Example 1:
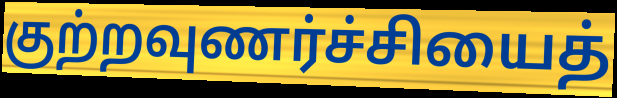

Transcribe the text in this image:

குற்றவுணர்ச்சியைத்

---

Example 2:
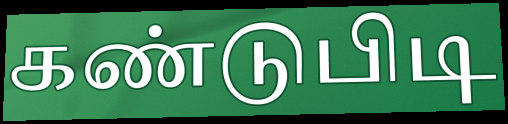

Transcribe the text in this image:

கண்டுபிடி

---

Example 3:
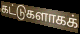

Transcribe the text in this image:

கட்டுகளாகக்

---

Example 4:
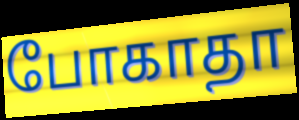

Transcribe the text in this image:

போகாதா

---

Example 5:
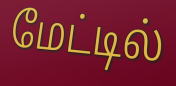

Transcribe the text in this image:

மேட்டில்